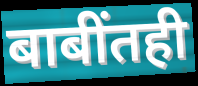
बाबींतही